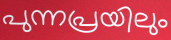
പുന്നപ്രയിലും